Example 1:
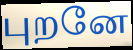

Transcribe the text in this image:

புறனே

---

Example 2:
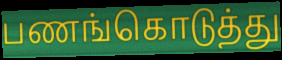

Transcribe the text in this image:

பணங்கொடுத்து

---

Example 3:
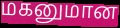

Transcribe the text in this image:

மகனுமான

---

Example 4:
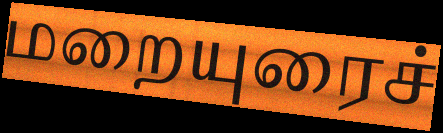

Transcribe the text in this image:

மறையுரைச்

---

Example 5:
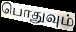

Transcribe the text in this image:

பொதுவும்